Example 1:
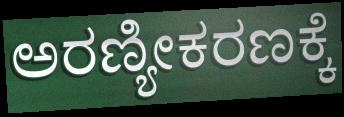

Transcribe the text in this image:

ಅರಣ್ಯೀಕರಣಕ್ಕೆ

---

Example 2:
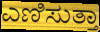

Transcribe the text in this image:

ಎಣಿಸುತ್ತಾ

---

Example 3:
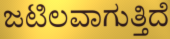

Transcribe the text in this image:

ಜಟಿಲವಾಗುತ್ತಿದೆ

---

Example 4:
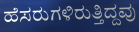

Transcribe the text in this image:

ಹೆಸರುಗಳಿರುತ್ತಿದ್ದವು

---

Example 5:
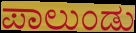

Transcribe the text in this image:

ಪಾಲುಂಡು